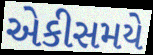
એકીસમયે